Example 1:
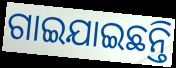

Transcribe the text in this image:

ଗାଇଯାଇଛନ୍ତି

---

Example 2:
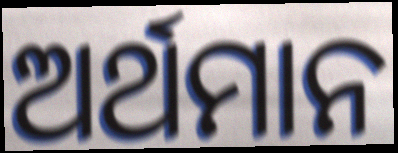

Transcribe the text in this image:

ଅର୍ଥମାନ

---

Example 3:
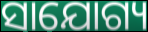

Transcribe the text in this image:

ସାଯୋଗ୍ୟ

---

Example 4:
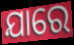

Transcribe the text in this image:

ଯାରେ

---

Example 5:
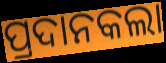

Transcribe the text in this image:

ପ୍ରଦାନକଲା